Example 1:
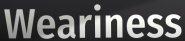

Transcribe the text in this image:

Weariness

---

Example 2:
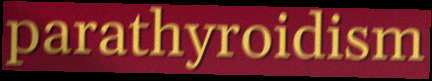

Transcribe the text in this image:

parathyroidism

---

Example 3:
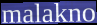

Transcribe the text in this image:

malakno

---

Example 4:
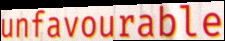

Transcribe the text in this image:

unfavourable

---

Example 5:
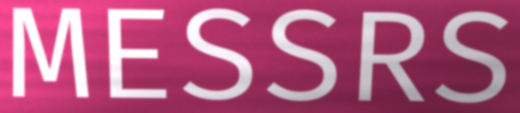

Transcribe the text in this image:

MESSRS